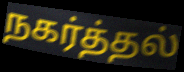
நகர்த்தல்